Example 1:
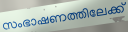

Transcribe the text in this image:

സംഭാഷണത്തിലേക്ക്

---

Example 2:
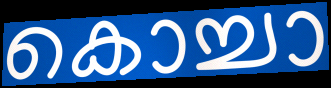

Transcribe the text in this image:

കൊച്ചാ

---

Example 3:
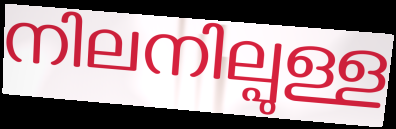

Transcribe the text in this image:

നിലനില്പുള്ള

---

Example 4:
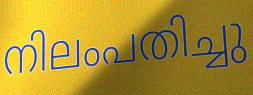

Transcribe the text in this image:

നിലംപതിച്ചു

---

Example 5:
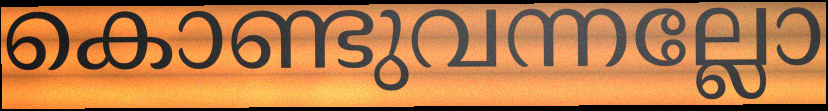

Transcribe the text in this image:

കൊണ്ടുവന്നല്ലോ